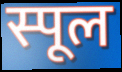
स्पूल